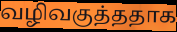
வழிவகுத்ததாக